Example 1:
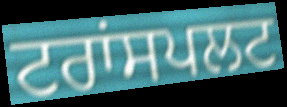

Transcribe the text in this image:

ਟਰਾਂਸਪਲਟ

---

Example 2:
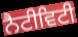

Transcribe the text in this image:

ਨੈਟੀਵਿਟੀ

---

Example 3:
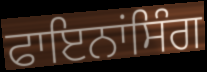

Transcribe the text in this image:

ਫਾਇਨਾਂਸਿੰਗ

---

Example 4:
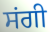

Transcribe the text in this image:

ਸਂਗੀ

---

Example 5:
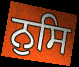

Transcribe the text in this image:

ਨੁਸਿ